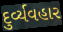
દુર્વ્યવહાર